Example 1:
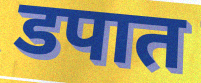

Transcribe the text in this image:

डपात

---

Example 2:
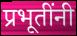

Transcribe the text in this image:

प्रभूतींनी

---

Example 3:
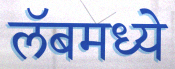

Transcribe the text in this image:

लॅबमध्ये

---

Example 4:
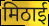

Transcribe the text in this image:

मिठाई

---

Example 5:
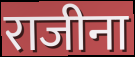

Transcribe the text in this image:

राजीना